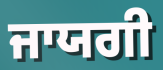
ਜਾਯਗੀ